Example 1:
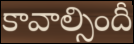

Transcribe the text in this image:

కావాల్సిందీ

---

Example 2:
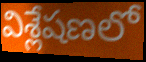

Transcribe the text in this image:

విశ్లేషణలో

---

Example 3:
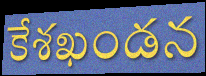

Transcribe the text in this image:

కేశఖండన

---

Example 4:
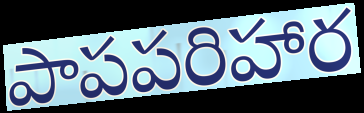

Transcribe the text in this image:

పాపపరిహార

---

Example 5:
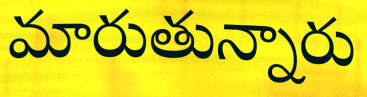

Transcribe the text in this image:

మారుతున్నారు